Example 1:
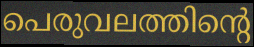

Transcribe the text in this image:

പെരുവലത്തിന്റെ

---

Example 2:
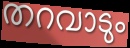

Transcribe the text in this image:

തറവാടും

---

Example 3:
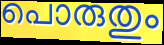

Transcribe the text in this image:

പൊരുതും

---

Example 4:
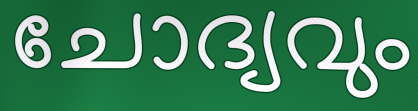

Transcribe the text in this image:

ചോദ്യവും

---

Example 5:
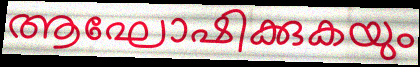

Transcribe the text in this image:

ആഘോഷിക്കുകയും